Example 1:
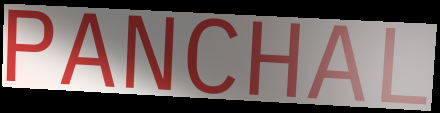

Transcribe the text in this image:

PANCHAL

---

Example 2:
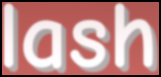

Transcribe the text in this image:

lash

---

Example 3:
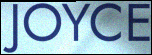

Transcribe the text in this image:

JOYCE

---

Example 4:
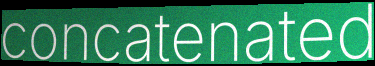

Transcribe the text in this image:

concatenated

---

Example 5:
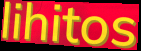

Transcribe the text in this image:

lihitos